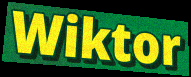
Wiktor